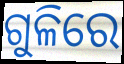
ଗୁଳିରେ